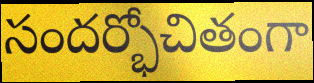
సందర్భోచితంగా